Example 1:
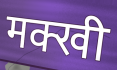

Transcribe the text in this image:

मक्खी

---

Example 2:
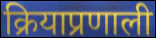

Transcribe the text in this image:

क्रियाप्रणाली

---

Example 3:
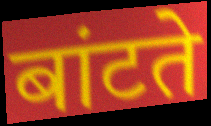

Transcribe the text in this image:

बांटते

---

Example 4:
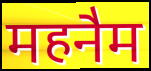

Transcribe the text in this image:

महनैम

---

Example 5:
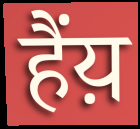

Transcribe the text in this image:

हैंय़